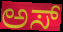
ಅಸ್